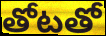
తోటతో